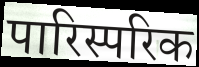
पारिस्परिक